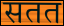
सतत